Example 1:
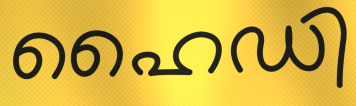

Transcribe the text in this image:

ഹൈഡി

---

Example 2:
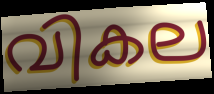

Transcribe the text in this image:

വികല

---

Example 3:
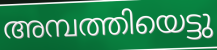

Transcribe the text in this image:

അമ്പത്തിയെട്ടു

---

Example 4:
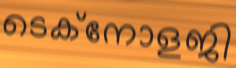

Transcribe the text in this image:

ടെക്നോളജി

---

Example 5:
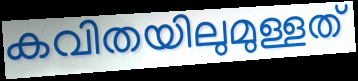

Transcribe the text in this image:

കവിതയിലുമുള്ളത്